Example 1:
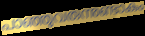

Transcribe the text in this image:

പാഞ്ഞുവരുന്നുണ്ടാകും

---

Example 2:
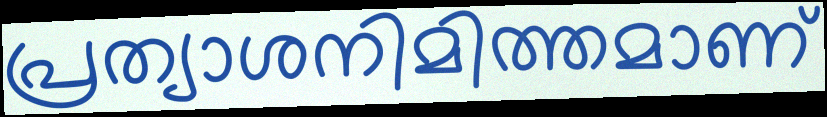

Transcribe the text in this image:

പ്രത്യാശനിമിത്തമാണ്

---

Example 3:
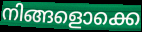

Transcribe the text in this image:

നിങ്ങളൊക്കെ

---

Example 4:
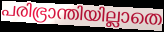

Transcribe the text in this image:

പരിഭ്രാന്തിയില്ലാതെ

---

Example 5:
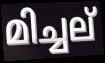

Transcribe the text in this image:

മിച്ചല്